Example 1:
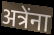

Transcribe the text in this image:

अत्रेंना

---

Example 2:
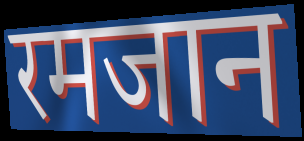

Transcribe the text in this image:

रमजान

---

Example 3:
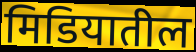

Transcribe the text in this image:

मिडियातील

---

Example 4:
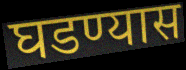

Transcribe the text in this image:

घडण्यास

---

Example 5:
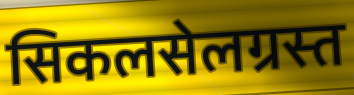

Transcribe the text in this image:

सिकलसेलग्रस्त